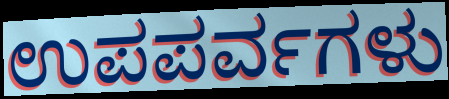
ಉಪಪರ್ವಗಳು